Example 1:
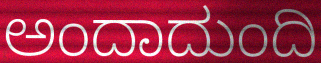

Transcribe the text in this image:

ಅಂದಾದುಂದಿ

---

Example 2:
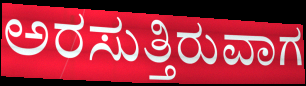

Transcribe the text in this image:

ಅರಸುತ್ತಿರುವಾಗ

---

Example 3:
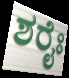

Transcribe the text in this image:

ಶರೈಃ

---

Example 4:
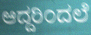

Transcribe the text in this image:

ಆದ್ದರಿಂದಲೆ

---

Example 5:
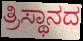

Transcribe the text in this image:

ತ್ರಿಸ್ಥಾನದ